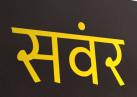
सवंर